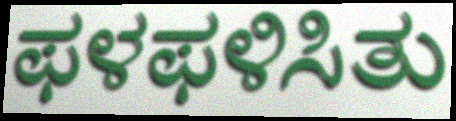
ಫಳಫಳಿಸಿತು